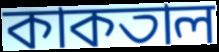
কাকতাল